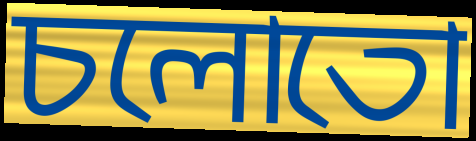
চলোতো